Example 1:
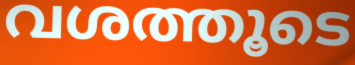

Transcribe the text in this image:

വശത്തൂടെ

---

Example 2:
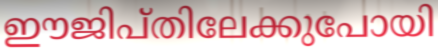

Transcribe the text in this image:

ഈജിപ്തിലേക്കുപോയി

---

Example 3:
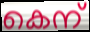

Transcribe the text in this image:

കെന്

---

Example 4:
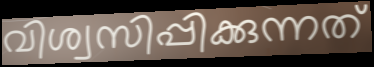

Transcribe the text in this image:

വിശ്വസിപ്പിക്കുന്നത്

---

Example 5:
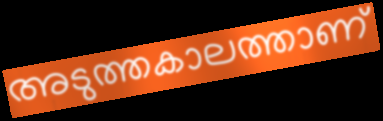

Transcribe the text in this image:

അടുത്തകാലത്താണ്